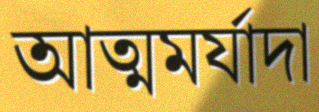
আত্মমর্যাদা